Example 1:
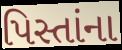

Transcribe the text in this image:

પિસ્તાંના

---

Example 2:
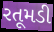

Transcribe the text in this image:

રતૂમડી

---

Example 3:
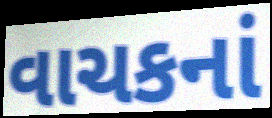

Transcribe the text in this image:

વાચકનાં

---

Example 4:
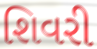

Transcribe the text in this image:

શિવરી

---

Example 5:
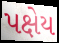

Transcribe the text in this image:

પક્ષેય